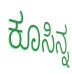
ಕೂಸಿನ್ನ